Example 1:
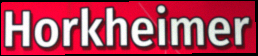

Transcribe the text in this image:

Horkheimer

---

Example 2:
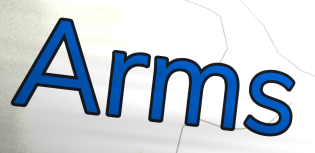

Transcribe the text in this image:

Arms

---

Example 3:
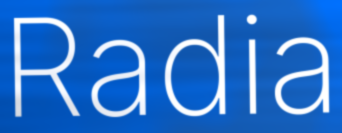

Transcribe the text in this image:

Radia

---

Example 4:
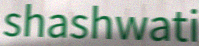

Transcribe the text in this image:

shashwati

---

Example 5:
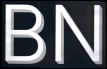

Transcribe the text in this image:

BN